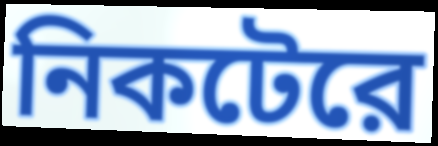
নিকটেরে